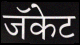
जॅकेट